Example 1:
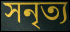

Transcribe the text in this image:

সনৃত্য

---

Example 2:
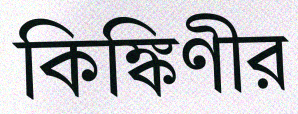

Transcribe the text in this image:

কিঙ্কিণীর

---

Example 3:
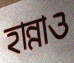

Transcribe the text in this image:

হান্নাও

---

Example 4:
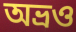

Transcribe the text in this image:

অভ্রও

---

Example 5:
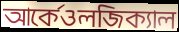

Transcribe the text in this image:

আর্কেওলজিক্যাল